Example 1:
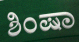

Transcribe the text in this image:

ಶಿಂಷಾ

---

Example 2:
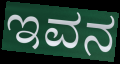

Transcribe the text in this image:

ಇವನ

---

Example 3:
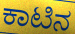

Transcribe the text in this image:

ಕಾಟಿನ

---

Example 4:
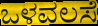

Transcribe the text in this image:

ಒಳವಲಸೆ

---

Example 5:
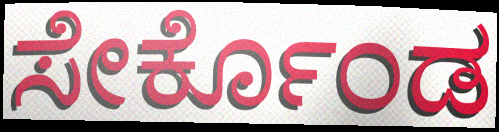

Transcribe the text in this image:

ಸೇರ್ಕೊಂಡ